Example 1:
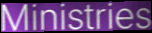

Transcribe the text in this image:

Ministries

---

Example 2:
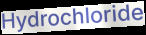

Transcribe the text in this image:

Hydrochloride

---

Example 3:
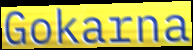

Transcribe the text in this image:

Gokarna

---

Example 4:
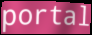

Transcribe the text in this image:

portal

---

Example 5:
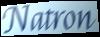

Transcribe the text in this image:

Natron